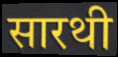
सारथी